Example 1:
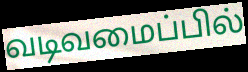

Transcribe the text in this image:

வடிவமைப்பில்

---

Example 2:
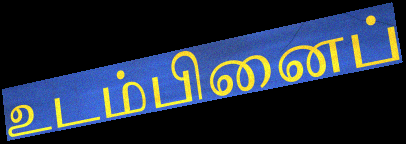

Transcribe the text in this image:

உடம்பினைப்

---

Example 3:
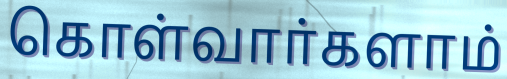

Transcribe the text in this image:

கொள்வார்களாம்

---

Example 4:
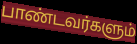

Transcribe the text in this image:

பாண்டவர்களும்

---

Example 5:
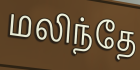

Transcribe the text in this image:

மலிந்தே